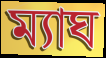
ম্যাঘ